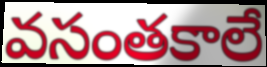
వసంతకాలే